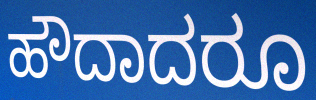
ಹೌದಾದರೂ